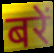
बरें